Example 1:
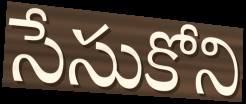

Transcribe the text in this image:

సేసుకోని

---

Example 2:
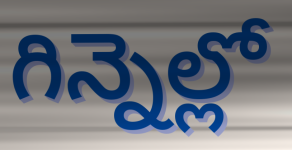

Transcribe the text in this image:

గిన్నెల్లో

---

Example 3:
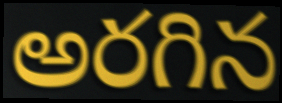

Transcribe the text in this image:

అరగిన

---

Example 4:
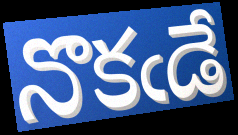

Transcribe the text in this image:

నొకఁడే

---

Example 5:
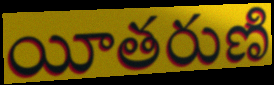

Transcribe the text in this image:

యీతరుణి